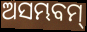
ଅସମ୍ଭବମ୍